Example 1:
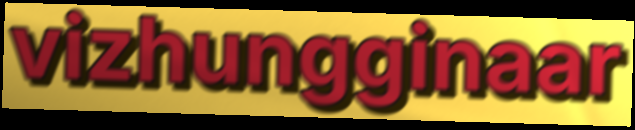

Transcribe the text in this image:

vizhungginaar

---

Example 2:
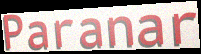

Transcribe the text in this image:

Paranar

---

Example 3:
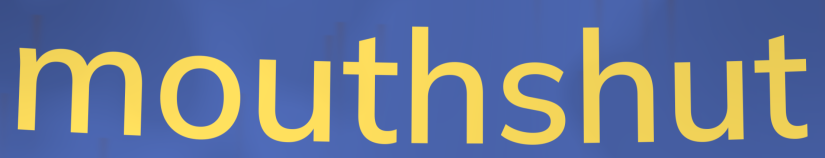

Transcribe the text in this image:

mouthshut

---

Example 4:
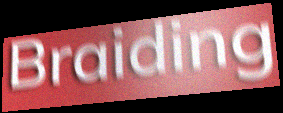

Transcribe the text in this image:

Braiding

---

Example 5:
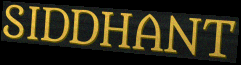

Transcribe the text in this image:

SIDDHANT